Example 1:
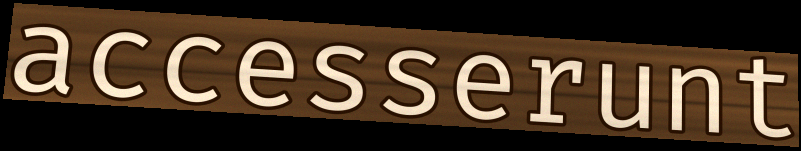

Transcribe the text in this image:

accesserunt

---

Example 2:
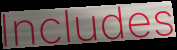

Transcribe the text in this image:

Includes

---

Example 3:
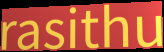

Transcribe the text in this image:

rasithu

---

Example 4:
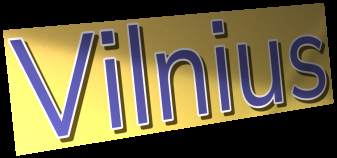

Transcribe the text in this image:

Vilnius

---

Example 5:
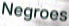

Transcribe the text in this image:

Negroes